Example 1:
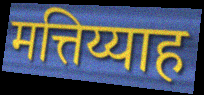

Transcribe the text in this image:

मत्तिय्याह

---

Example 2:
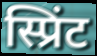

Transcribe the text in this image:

स्प्रिंट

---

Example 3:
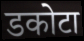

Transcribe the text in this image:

डकोटा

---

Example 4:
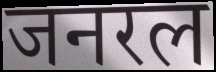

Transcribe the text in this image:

जनरल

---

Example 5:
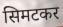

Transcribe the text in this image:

सिमटकर